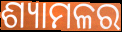
ଶ୍ୟାମଳର